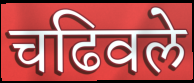
चढिवले